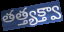
తత్త్యక్త్వా